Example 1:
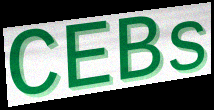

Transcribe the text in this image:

CEBs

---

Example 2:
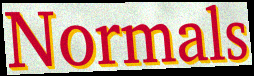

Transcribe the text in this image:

Normals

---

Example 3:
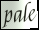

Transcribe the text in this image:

pale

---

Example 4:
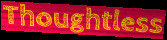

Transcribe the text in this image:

Thoughtless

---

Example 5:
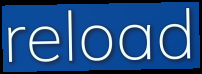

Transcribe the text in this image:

reload